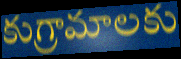
కుగ్రామాలకు